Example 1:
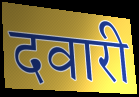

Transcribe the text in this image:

दवारी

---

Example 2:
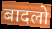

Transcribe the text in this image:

बादलो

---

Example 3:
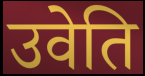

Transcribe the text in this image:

उवेति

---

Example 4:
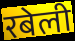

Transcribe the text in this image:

रबेली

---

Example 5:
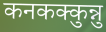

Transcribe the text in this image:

कनकक्कुन्नु